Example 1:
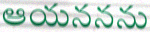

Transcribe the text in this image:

ఆయననను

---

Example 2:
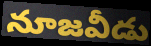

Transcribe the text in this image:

నూజవీడు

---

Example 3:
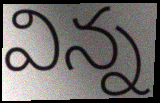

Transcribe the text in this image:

విన్న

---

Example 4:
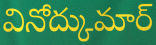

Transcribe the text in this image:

వినోద్కుమార్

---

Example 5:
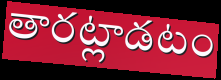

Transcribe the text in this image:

తారట్లాడటం